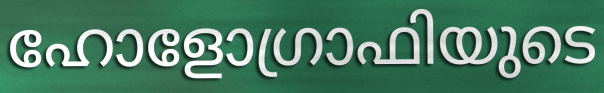
ഹോളോഗ്രാഫിയുടെ